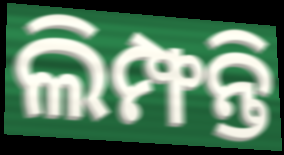
ଲିମ୍ଫନ୍ତି